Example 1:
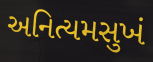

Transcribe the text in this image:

અનિત્યમસુખં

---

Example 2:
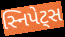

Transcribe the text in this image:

સ્નિપેટ્સ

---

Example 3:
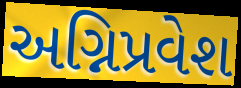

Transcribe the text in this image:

અગ્નિપ્રવેશ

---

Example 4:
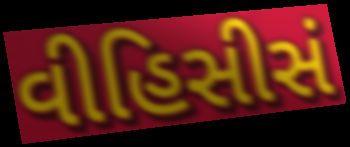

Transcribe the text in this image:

વીહિસીસં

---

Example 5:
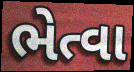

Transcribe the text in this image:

ભેત્વા